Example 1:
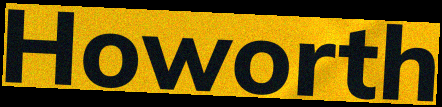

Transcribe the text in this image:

Howorth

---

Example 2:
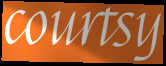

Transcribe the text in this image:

courtsy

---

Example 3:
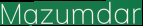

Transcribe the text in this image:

Mazumdar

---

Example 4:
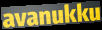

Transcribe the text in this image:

avanukku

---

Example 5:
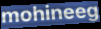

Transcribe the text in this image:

mohineeg